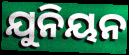
ଯୁନିୟନ